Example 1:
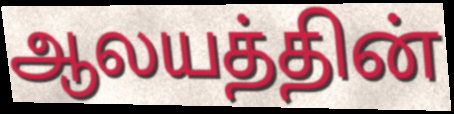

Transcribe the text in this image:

ஆலயத்தின்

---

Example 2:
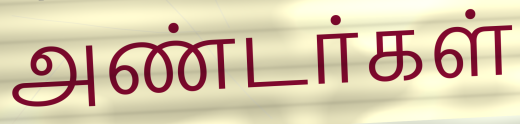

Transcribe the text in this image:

அண்டர்கள்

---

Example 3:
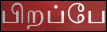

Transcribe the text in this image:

பிறப்பே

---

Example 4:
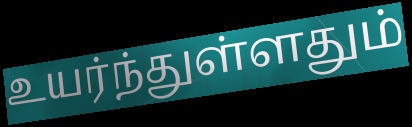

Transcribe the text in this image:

உயர்ந்துள்ளதும்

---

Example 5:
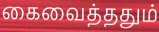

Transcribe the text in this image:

கைவைத்ததும்